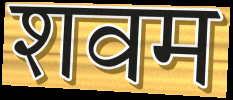
शवम